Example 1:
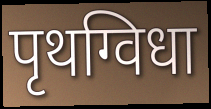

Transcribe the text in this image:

पृथग्विधा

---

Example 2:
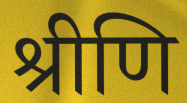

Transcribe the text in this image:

श्रीणि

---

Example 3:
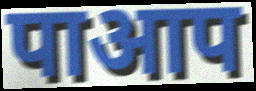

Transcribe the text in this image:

पाआप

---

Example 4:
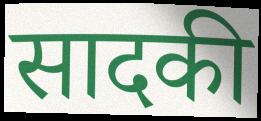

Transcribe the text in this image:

सादकी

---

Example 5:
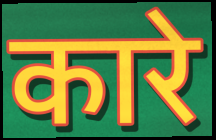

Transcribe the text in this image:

कारे